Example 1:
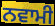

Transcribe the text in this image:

ਨਵਾਮੀ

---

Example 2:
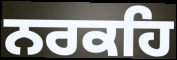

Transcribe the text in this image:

ਨਰਕਹਿ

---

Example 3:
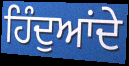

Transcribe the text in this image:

ਹਿੰਦੁਆਂਦੇ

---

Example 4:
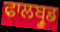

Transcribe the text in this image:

ਫਾਲਬ੍ਰੂਡ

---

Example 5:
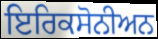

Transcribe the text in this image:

ਇਰਿਕਸੋਨੀਅਨ